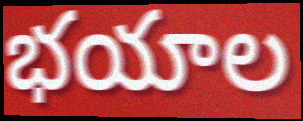
భయాల